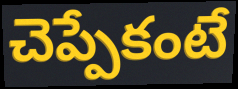
చెప్పేకంటే